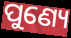
ପୁଣ୍ୟେ